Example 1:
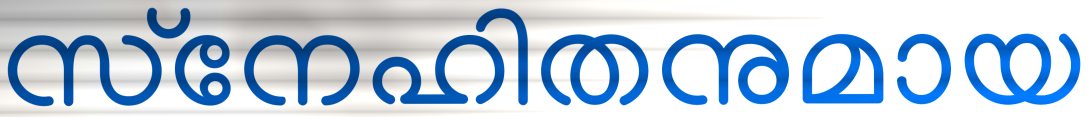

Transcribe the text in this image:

സ്‌നേഹിതനുമായ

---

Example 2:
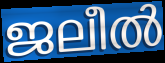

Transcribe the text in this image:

ജലീൽ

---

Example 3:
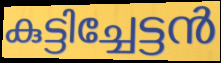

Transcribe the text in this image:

കുട്ടിച്ചേട്ടൻ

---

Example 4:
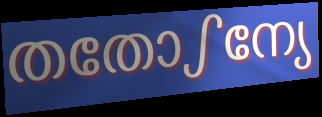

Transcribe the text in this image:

തതോഽന്യേ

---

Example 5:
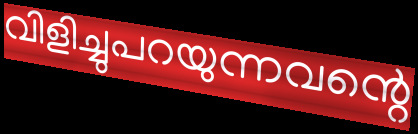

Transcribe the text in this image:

വിളിച്ചുപറയുന്നവന്റെ